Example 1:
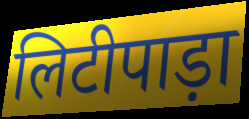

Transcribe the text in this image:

लिटीपाड़ा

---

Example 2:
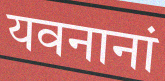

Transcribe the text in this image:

यवनानां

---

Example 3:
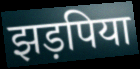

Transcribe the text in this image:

झड़पिया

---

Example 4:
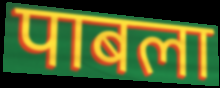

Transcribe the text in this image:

पाबला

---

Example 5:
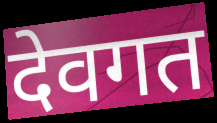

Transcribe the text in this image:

देवगत